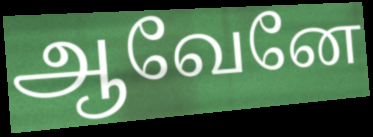
ஆவேனே